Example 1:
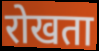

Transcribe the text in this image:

रोखता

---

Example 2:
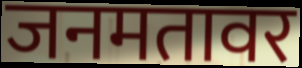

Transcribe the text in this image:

जनमतावर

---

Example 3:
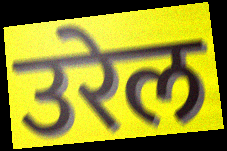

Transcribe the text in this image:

उरेल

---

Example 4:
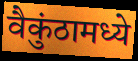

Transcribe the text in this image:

वैकुंठामध्ये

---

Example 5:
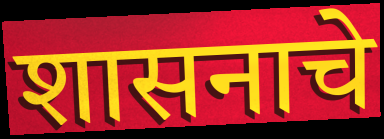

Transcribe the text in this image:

शासनाचे